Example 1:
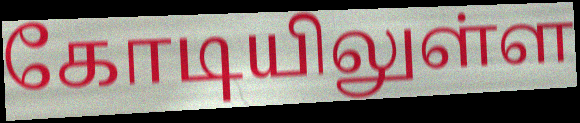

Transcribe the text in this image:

கோடியிலுள்ள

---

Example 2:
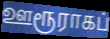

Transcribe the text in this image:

ஊரூராகப்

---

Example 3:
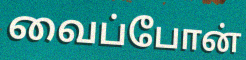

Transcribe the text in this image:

வைப்போன்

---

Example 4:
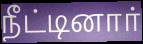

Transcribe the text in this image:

நீட்டினார்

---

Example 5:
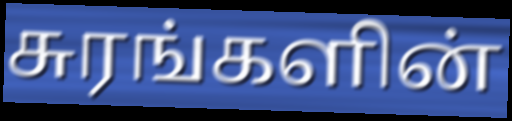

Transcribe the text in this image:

சுரங்களின்